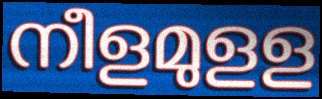
നീളമുളള